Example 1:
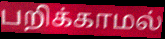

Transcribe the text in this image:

பறிக்காமல்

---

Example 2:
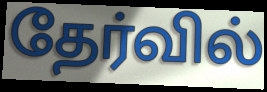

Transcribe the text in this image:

தேர்வில்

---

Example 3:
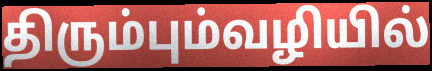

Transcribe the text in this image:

திரும்பும்வழியில்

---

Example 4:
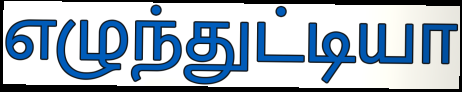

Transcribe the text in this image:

எழுந்துட்டியா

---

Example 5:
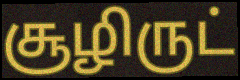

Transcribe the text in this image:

சூழிருட்